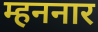
म्हननार